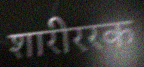
शारीररक